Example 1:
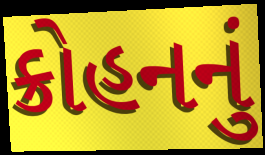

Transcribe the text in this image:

ક્રોહનનું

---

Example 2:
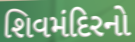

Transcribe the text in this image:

શિવમંદિરનો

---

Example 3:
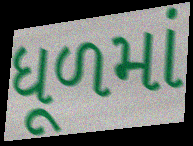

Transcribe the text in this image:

ધૂળમાં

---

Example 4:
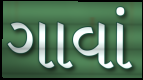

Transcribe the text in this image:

ગાવાં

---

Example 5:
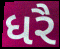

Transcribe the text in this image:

ધરૈ